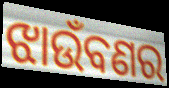
ଝାଉଁବଣର